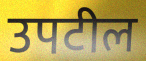
उपटील